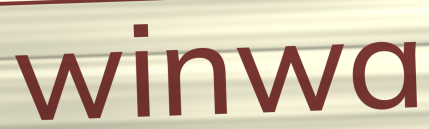
winwa